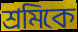
শ্ৰমিকে